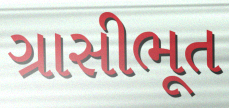
ગ્રાસીભૂત